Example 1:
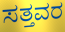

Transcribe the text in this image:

ಸತ್ತವರ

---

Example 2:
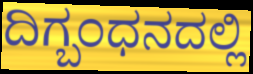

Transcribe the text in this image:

ದಿಗ್ಬಂಧನದಲ್ಲಿ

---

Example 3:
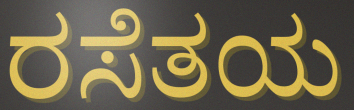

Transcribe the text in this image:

ರಸೆತಯ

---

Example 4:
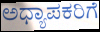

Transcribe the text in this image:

ಅಧ್ಯಾಪಕರಿಗೆ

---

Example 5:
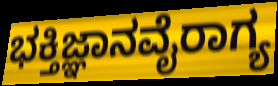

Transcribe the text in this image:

ಭಕ್ತಿಜ್ಞಾನವೈರಾಗ್ಯ